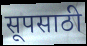
सूपसाठी